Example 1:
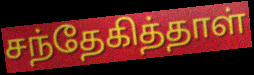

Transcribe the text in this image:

சந்தேகித்தாள்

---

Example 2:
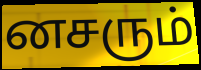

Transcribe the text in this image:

னசரும்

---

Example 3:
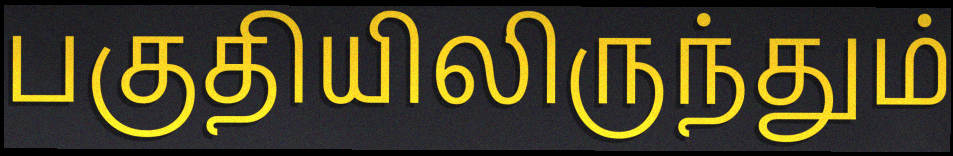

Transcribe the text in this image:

பகுதியிலிருந்தும்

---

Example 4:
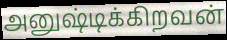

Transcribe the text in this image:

அனுஷ்டிக்கிறவன்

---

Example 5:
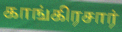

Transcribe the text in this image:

காங்கிரசார்